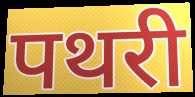
पथरी